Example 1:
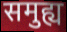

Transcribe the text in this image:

समुह्य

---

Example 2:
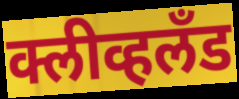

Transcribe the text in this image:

क्लीव्हलँड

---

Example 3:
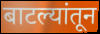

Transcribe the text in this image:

बाटल्यांतून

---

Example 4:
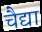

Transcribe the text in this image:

चैद्या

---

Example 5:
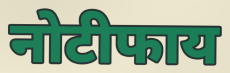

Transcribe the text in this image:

नोटीफाय